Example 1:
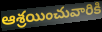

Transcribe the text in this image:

ఆశ్రయించువారికి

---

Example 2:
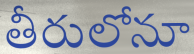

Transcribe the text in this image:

తీరులోనూ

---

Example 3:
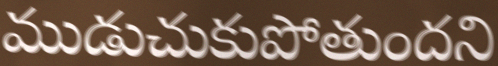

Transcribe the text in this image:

ముడుచుకుపోతుందని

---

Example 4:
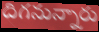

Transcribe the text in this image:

దిగనున్నారు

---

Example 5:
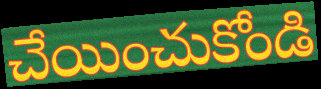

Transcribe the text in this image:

చేయించుకోండి